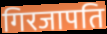
गिरजापति